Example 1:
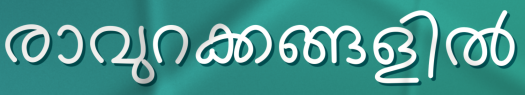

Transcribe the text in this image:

രാവുറക്കങ്ങളിൽ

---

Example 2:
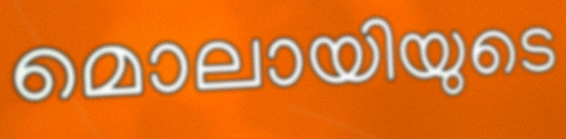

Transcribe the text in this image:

മൊലായിയുടെ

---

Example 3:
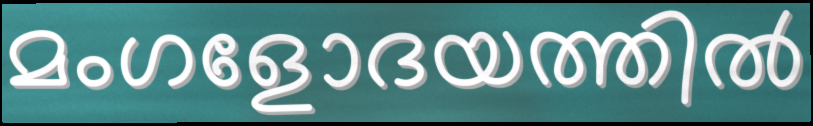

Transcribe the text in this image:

മംഗളോദയത്തിൽ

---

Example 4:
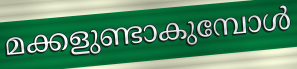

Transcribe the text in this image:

മക്കളുണ്ടാകുമ്പോൾ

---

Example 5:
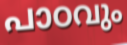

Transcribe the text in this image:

പാഠവും